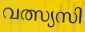
വത്സ്യസി